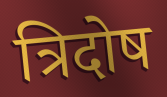
त्रिदोष